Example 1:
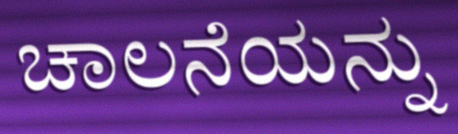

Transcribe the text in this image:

ಚಾಲನೆಯನ್ನು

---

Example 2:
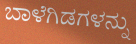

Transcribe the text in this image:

ಬಾಳೆಗಿಡಗಳನ್ನು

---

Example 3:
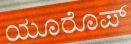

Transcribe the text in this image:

ಯೂರೊಪ್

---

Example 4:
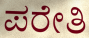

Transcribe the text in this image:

ಪರೇತಿ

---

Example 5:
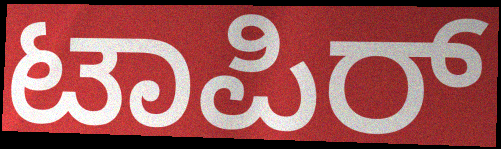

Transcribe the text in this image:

ಟಾಪಿರ್